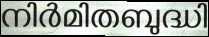
നിർമിതബുദ്ധി